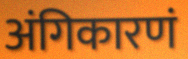
अंगिकारणं